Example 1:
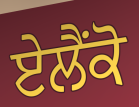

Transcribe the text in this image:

ਏਲੈਂਕੋ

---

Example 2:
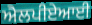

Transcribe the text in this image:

ਐਲਪੀਏਆਈ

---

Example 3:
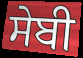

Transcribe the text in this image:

ਸੇਬੀ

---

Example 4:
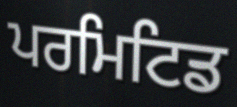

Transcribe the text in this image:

ਪਰਮਿਟਿਡ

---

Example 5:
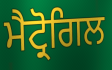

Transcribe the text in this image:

ਮੈਟ੍ਰੋਗਿਲ